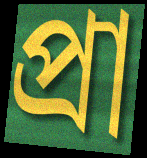
প্রা